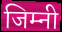
जिम्नी